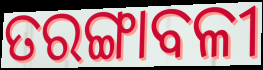
ତରଙ୍ଗାବଳୀ